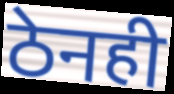
ठेनही